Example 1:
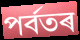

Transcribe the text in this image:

পৰ্বতৰ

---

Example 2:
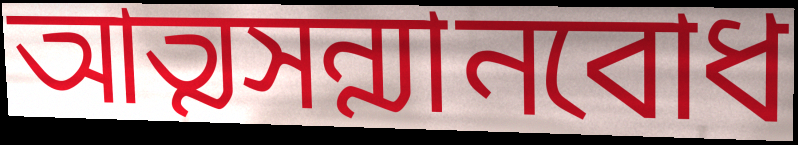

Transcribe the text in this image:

আত্মসন্মানবোধ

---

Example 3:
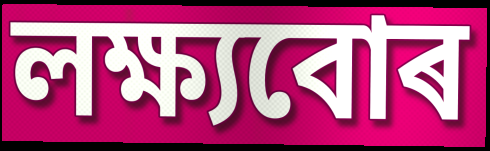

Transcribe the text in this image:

লক্ষ্যবোৰ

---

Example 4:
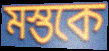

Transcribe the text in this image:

মস্তকে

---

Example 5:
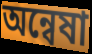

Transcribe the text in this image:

অন্বেষা